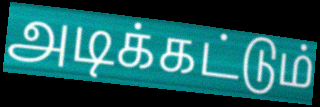
அடிக்கட்டும்